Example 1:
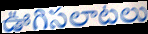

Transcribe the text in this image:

ఊగిసలాటలు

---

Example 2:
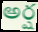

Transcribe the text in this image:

అర్ష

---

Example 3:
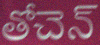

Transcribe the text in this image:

తోచెన్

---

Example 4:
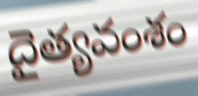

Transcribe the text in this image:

దైత్యవంశం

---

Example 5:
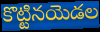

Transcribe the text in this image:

కొట్టినయెడల